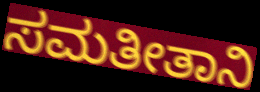
ಸಮತೀತಾನಿ